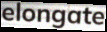
elongate